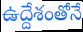
ఉద్దేశంతోనే